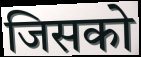
जिसको